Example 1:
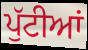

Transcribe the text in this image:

ਪੁੱਟੀਆਂ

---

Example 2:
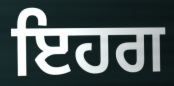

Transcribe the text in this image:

ਇਹਗ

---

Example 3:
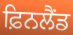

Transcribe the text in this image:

ਫ਼ਿਨਲੈਂਡ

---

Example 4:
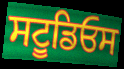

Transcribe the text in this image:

ਸਟੂਡਿਓਸ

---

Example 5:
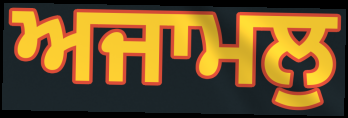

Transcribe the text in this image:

ਅਜਾਮਲੁ